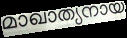
മാഖാത്യനായ